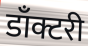
डाँक्टरी